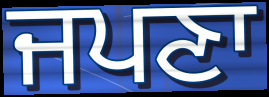
ਜਪਣਾ